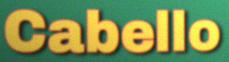
Cabello